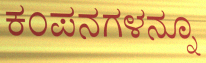
ಕಂಪನಗಳನ್ನೂ